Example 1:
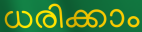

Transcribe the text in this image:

ധരിക്കാം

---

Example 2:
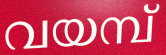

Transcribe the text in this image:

വയമ്പ്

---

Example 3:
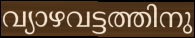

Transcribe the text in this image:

വ്യാഴവട്ടത്തിനു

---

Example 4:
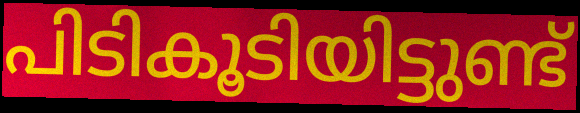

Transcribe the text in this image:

പിടികൂടിയിട്ടുണ്ട്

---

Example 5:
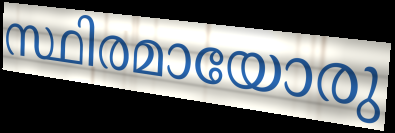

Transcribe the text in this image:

സ്ഥിരമായോരു